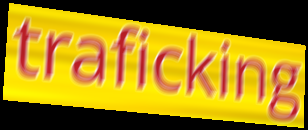
traficking